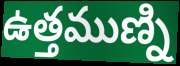
ఉత్తముణ్ని